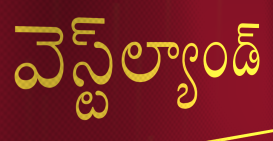
వెస్ట్‌ల్యాండ్